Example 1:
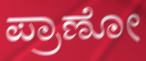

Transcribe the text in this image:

ಪ್ರಾಣೋ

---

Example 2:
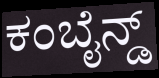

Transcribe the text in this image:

ಕಂಬೈನ್ಡ್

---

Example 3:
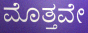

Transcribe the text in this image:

ಮೊತ್ತವೇ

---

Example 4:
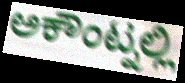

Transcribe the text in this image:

ಅಕೌಂಟ್ನಲ್ಲಿ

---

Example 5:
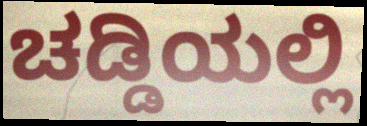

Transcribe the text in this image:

ಚಡ್ಡಿಯಲ್ಲಿ